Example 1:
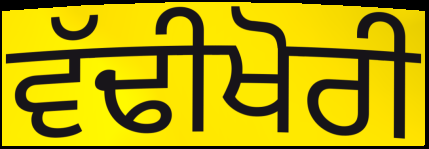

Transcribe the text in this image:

ਵੱਢੀਖੋਰੀ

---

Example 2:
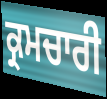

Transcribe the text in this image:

ਕ੍ਰਮਚਾਰੀ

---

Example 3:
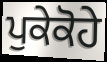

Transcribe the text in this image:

ਪੁਕੇਕੋਹੇ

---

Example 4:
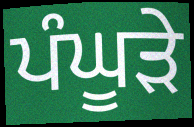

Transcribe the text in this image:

ਪੰਘੂੜੇ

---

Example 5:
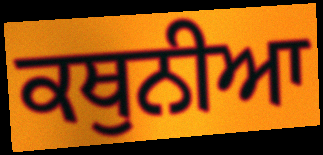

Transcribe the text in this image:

ਕਥੁਨੀਆ